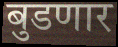
बुडणार